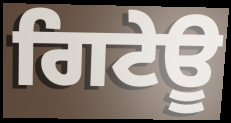
ਗਿਟੇਊ